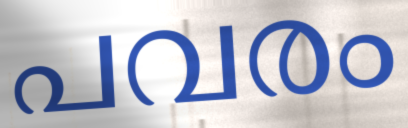
പവരം